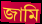
জামি